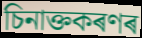
চিনাক্তকৰণৰ